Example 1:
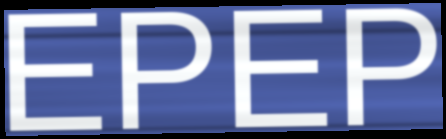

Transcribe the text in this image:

EPEP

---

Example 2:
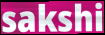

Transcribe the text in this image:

sakshi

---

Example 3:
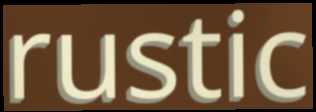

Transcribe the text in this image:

rustic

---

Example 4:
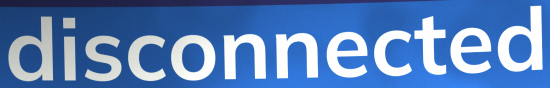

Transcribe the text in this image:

disconnected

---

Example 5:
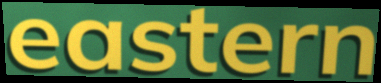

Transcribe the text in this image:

eastern